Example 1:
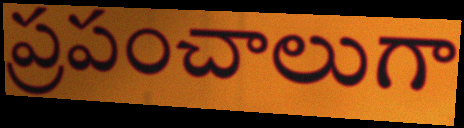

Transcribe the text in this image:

ప్రపంచాలుగా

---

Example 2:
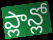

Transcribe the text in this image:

ప్లాన్లో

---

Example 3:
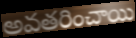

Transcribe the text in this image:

అవతరించాయి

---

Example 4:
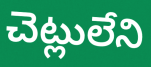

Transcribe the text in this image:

చెట్లులేని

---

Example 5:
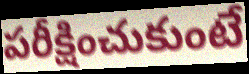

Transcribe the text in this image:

పరీక్షించుకుంటే